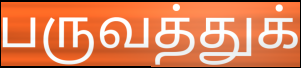
பருவத்துக்